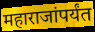
महाराजांपर्यंत